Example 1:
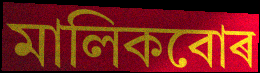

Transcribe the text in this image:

মালিকবোৰ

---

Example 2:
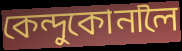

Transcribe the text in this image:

কেন্দুকোনালৈ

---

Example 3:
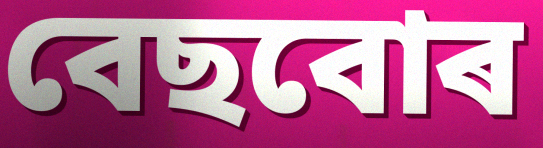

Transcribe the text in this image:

বেছবোৰ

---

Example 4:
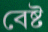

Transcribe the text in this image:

বেষ্ট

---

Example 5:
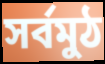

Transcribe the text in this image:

সৰ্বমুঠ